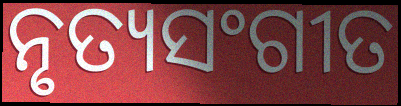
ନୃତ୍ୟସଂଗୀତ